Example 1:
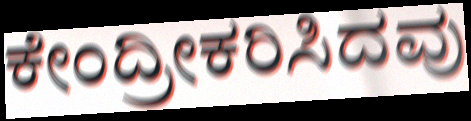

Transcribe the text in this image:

ಕೇಂದ್ರೀಕರಿಸಿದವು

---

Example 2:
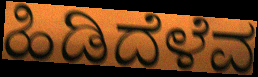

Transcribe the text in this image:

ಹಿಡಿದೆಳೆವ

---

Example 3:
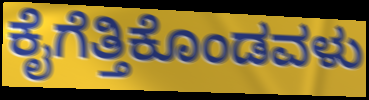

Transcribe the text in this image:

ಕೈಗೆತ್ತಿಕೊಂಡವಳು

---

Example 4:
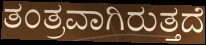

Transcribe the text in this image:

ತಂತ್ರವಾಗಿರುತ್ತದೆ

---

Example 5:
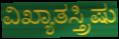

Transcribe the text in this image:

ವಿಖ್ಯಾತಸ್ತ್ರಿಷು